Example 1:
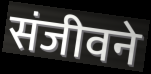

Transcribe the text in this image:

संजीवने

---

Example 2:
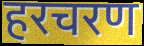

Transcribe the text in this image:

हरचरण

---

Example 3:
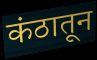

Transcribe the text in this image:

कंठातून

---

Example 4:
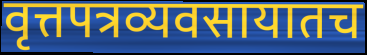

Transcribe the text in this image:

वृत्तपत्रव्यवसायातच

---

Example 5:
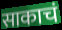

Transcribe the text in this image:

साकाचं